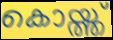
കൊയ്ത്ത്